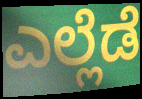
ಎಲ್ಲೆಡೆ